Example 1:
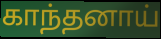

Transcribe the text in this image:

காந்தனாய்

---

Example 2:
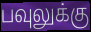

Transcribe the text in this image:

பவுலுக்கு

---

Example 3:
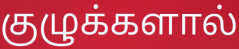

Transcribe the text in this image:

குழுக்களால்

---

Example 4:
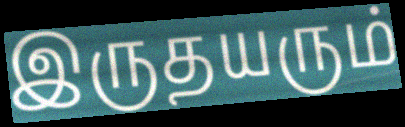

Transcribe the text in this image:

இருதயரும்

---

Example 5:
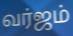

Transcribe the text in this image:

வர்ஜம்